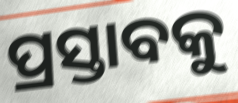
ପ୍ରସ୍ତାବକୁ